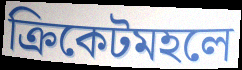
ক্রিকেটমহলে